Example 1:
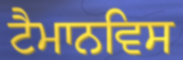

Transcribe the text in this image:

ਟੈਮਾਨਵਿਸ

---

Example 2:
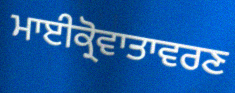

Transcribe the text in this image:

ਮਾਈਕ੍ਰੋਵਾਤਾਵਰਣ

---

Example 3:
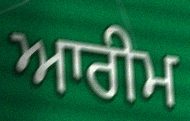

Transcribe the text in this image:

ਆਰੀਮ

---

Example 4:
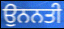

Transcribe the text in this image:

ਉਨਨਤੀ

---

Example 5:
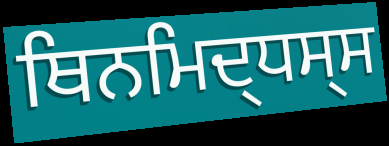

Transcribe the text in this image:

ਥਿਨਮਿਦ੍ਧਸ੍ਸ